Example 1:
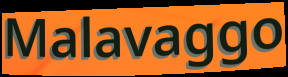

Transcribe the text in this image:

Malavaggo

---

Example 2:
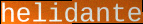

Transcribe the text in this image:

helidante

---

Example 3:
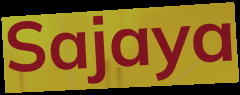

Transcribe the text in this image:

Sajaya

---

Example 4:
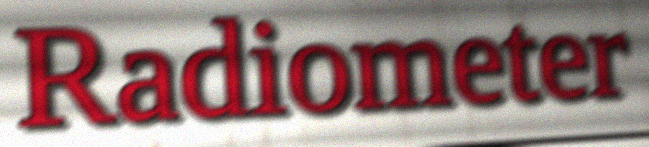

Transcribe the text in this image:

Radiometer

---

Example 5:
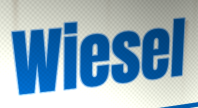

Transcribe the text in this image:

Wiesel